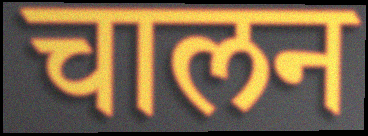
चालन